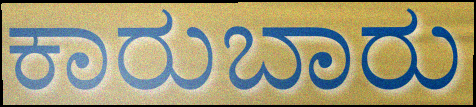
ಕಾರುಬಾರು